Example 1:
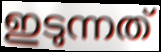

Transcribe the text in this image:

ഇടുന്നത്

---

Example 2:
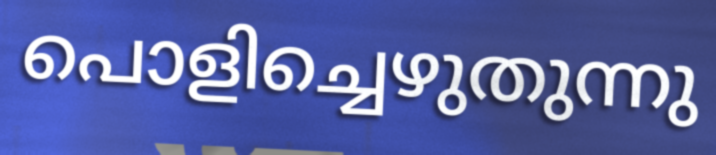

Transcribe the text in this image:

പൊളിച്ചെഴുതുന്നു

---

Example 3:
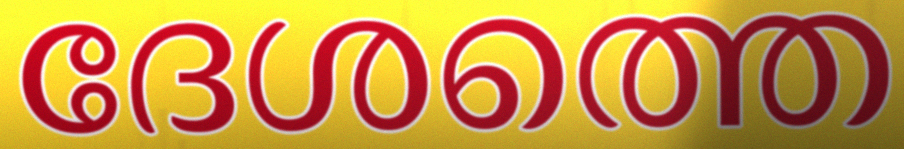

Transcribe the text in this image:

ദേശത്തെ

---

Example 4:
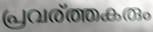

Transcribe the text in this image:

പ്രവര്ത്തകരും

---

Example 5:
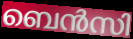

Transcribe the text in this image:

ബെൻസി